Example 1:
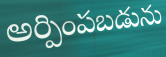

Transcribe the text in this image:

అర్పింపబడును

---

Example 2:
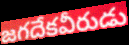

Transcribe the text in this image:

జగదేకవీరుడు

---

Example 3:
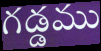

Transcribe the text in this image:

గడ్డము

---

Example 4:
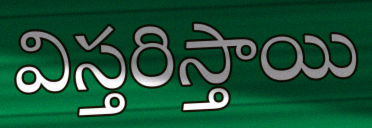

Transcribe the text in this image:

విస్తరిస్తాయి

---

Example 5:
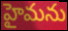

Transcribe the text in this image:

హైమను